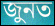
জুনত